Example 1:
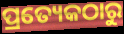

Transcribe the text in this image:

ପ୍ରତ୍ୟେକଠାରୁ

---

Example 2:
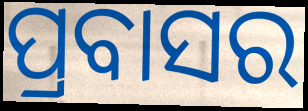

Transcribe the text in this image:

ପ୍ରବାସର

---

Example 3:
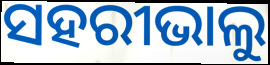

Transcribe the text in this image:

ସହରୀଭାଲୁ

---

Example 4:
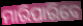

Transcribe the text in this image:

ମାରିପାରିବେ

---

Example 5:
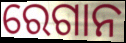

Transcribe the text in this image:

ରେଗାନ